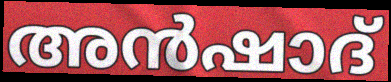
അൻഷാദ്